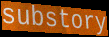
substory